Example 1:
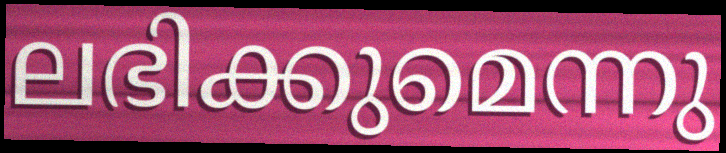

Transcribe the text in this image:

ലഭിക്കുമെന്നു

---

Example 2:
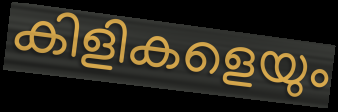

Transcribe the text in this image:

കിളികളെയും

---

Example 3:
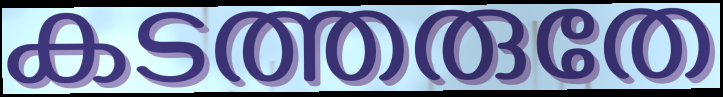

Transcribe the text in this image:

കടത്തരുതേ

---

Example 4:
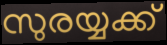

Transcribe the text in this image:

സുരയ്യക്ക്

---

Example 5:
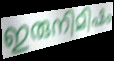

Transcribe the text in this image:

ഇരുനിമിഷം